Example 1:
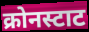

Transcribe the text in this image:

क्रोनस्टाट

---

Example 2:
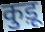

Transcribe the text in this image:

कुड़ू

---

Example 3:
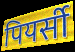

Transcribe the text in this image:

पियर्सी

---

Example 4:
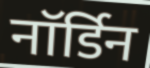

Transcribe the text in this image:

नॉर्डिन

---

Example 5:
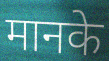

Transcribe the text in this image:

मानके